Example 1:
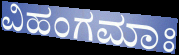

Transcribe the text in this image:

ವಿಹಂಗಮಾಃ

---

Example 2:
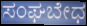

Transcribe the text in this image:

ಸಂಘಬೇಧ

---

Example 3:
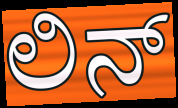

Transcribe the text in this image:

ಲಿನ್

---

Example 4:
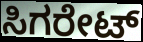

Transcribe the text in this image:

ಸಿಗರೇಟ್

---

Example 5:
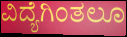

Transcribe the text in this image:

ವಿದ್ಯೆಗಿಂತಲೂ